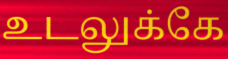
உடலுக்கே